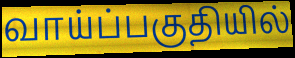
வாய்ப்பகுதியில்